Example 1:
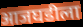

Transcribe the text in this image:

आजघडीला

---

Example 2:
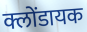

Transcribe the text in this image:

क्लोंडायक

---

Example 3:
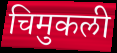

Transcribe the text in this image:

चिमुकली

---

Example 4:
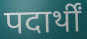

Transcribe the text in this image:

पदार्थीं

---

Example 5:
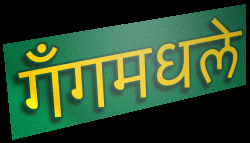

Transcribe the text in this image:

गँगमधले